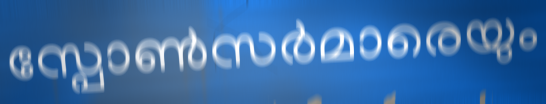
സ്പോൺസർമാരെയും